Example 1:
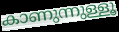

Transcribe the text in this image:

കാണുന്നുള്ളൂ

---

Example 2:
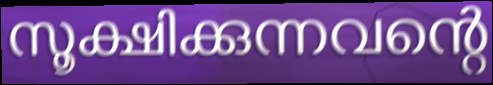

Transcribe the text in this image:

സൂക്ഷിക്കുന്നവന്റെ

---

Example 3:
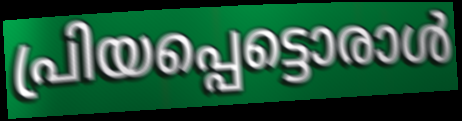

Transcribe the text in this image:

പ്രിയപ്പെട്ടൊരാൾ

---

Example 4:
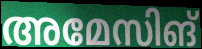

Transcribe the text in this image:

അമേസിങ്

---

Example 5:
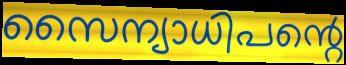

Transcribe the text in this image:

സൈന്യാധിപന്റെ